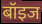
बॉइज